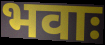
भवाः